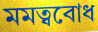
মমত্ববোধ